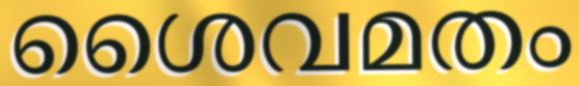
ശൈവമതം